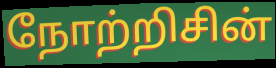
நோற்றிசின்